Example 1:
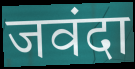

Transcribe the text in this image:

जवंदा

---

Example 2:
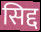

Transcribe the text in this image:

सिद्द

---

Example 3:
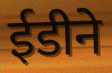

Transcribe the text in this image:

ईडीने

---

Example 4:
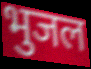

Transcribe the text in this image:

भुजल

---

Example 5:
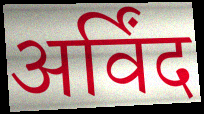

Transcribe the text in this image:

अर्विंद